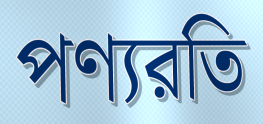
পণ্যরতি